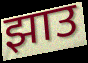
झाउ